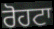
ਰੋਹਟਾ